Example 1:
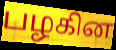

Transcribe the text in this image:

பழகின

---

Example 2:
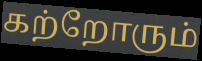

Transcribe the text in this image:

கற்றோரும்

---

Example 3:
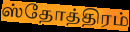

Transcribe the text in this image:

ஸ்தோத்திரம்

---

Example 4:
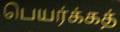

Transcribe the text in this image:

பெயர்க்கத்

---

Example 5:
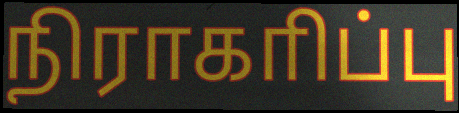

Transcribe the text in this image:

நிராகரிப்பு